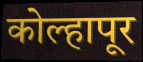
कोल्हापूर